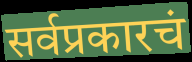
सर्वप्रकारचं